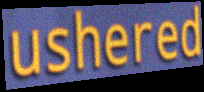
ushered